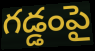
గడ్డంపై